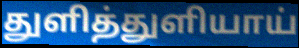
துளித்துளியாய்